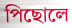
পিছোলে